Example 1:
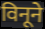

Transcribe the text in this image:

विनूने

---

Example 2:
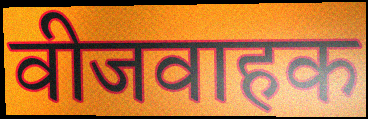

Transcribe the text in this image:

वीजवाहक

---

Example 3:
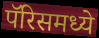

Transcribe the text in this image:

पॅरिसमध्ये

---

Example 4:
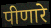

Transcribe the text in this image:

पीणारे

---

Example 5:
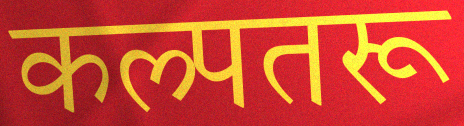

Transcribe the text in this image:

कल्पतरू